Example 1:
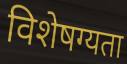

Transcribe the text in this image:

विशेषग्यता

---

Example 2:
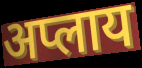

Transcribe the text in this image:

अप्लाय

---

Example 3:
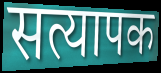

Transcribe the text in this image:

सत्यापक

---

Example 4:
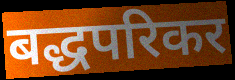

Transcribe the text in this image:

बद्धपरिकर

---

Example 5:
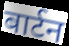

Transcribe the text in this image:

बार्टन